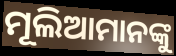
ମୂଲିଆମାନଙ୍କୁ